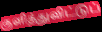
குளித்துவிட்டுப்